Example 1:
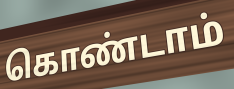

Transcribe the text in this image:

கொண்டாம்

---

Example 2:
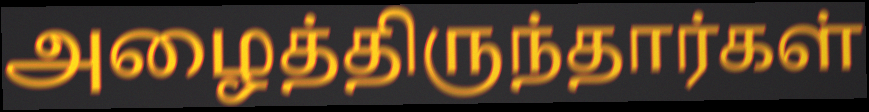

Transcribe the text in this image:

அழைத்திருந்தார்கள்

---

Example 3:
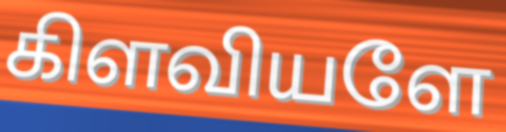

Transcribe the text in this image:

கிளவியளே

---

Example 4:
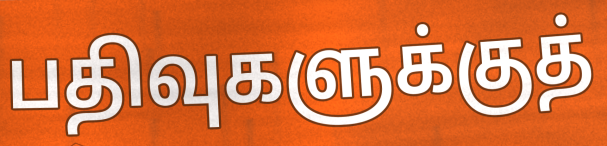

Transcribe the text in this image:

பதிவுகளுக்குத்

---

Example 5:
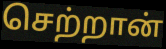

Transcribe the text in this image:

செற்றான்